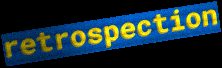
retrospection